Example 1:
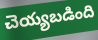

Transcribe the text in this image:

చెయ్యబడింది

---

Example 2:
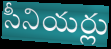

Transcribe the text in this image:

సీనియర్లు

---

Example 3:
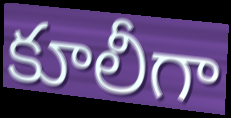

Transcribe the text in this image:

కూలీగా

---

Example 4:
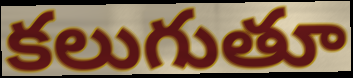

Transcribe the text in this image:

కలుగుతూ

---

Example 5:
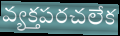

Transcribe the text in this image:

వ్యక్తపరచలేక